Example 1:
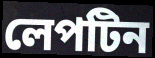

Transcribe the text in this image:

লেপটিন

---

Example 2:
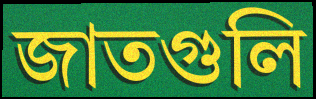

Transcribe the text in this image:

জাতগুলি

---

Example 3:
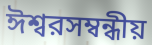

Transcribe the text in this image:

ঈশ্বরসম্বন্ধীয়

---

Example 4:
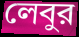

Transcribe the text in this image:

লেবুর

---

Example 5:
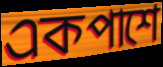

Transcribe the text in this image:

একপাশে